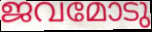
ജവമോടു